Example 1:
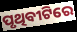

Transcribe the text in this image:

ପୃଥିବୀଟିରେ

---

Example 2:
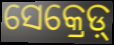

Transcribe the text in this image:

ସେକ୍ରେଡ଼୍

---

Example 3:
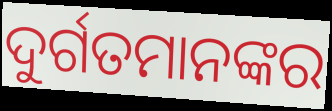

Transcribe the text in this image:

ଦୁର୍ଗତମାନଙ୍କର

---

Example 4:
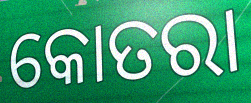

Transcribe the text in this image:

କୋତରା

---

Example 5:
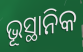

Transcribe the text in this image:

ଭୂସ୍ଥାନିକ